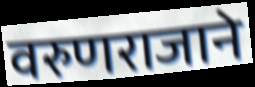
वरुणराजाने